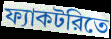
ফ্যাকটরিতে